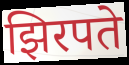
झिरपते